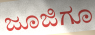
ಜೂಜಿಗೂ